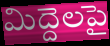
మిద్దెలపై